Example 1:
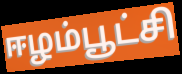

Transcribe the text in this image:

ஈழம்பூட்சி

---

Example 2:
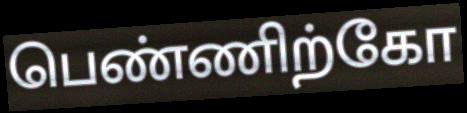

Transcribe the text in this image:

பெண்ணிற்கோ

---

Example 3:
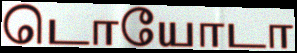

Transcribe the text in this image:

டொயோடா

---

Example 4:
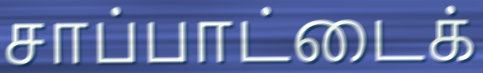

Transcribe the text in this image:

சாப்பாட்டைக்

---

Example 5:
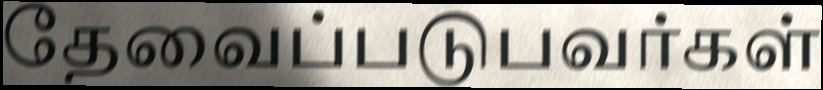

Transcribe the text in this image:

தேவைப்படுபவர்கள்